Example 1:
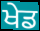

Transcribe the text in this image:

ਖੇਡ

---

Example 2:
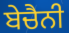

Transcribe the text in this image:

ਬੇਚੈਨੀ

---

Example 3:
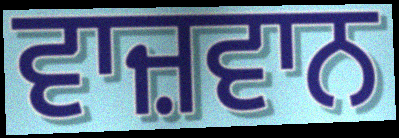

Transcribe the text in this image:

ਵਾਜ਼ਵਾਨ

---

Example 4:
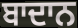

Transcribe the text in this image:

ਬਾਦਾਨ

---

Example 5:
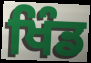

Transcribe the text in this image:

ਖਿੰਡ